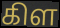
கிள